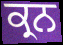
ਕ੍ਰਨ